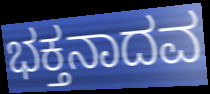
ಭಕ್ತನಾದವ